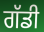
ਗੱਡੀ